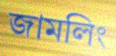
জামলিং